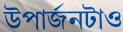
উপার্জনটাও